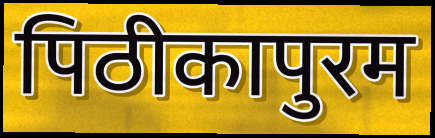
पिठीकापुरम